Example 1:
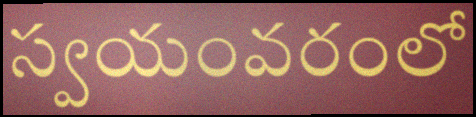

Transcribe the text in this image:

స్వయంవరంలో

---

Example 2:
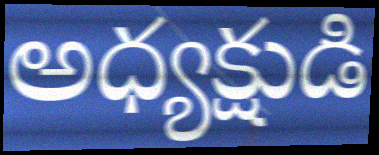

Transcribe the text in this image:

అధ్యక్షుడి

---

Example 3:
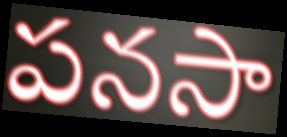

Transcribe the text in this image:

పనసా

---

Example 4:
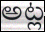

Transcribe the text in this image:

అట్ల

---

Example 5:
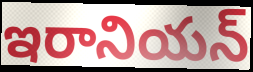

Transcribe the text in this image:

ఇరానియన్